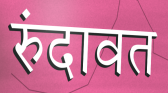
रुंदावत